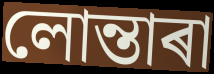
লোন্তাৰা